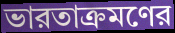
ভারতাক্রমণের